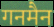
गनमैन